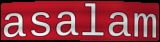
asalam